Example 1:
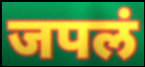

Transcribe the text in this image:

जपलं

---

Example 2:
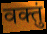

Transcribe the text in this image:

वक्तुं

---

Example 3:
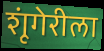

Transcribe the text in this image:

श्रृंगेरीला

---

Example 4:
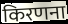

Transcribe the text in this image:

किरणना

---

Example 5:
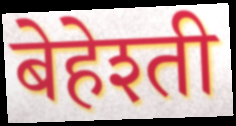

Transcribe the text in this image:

बेहेश्ती